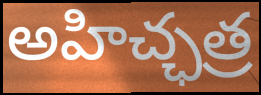
అహిచ్ఛత్ర